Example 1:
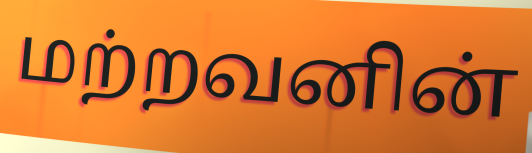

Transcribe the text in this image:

மற்றவனின்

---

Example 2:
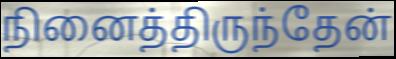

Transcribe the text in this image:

நினைத்திருந்தேன்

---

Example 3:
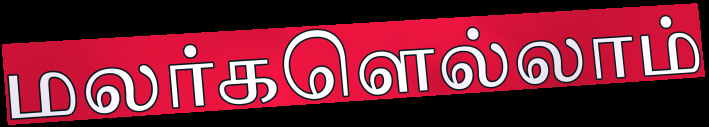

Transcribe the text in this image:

மலர்களெல்லாம்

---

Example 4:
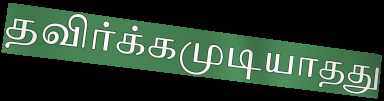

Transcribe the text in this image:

தவிர்க்கமுடியாதது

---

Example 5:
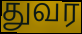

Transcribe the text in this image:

துவர